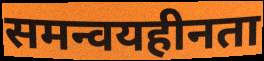
समन्वयहीनता